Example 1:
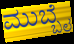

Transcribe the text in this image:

ಮುಬ್ಬೈ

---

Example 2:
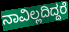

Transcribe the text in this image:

ನಾವಿಲ್ಲದಿದ್ದರೆ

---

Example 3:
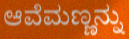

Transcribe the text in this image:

ಆವೆಮಣ್ಣನ್ನು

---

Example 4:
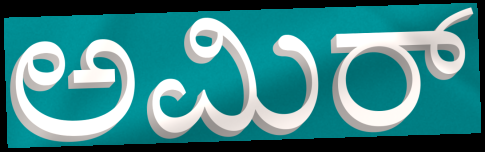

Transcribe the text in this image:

ಅಮಿರ್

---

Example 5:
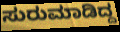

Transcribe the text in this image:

ಸುರುಮಾಡಿದ್ದ